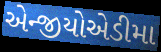
એન્જીયોએડીમા